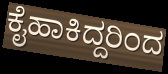
ಕೈಹಾಕಿದ್ದರಿಂದ